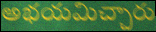
అభయమిచ్చారు